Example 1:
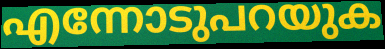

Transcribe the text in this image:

എന്നോടുപറയുക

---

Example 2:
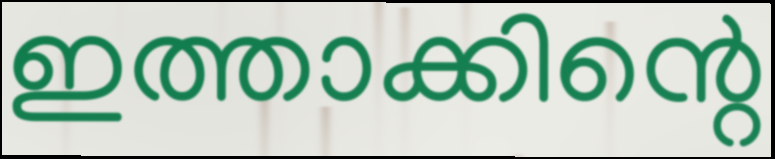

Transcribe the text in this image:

ഇത്താക്കിന്റെ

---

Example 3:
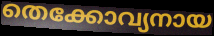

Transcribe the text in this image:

തെക്കോവ്യനായ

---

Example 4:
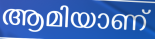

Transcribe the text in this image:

ആമിയാണ്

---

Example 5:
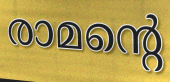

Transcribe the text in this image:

രാമന്റെ